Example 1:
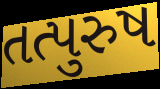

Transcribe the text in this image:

તત્પુરુષ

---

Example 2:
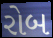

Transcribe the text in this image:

રોબ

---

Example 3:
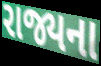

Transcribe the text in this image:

રાજ્યના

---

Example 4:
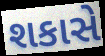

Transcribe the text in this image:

શકાસે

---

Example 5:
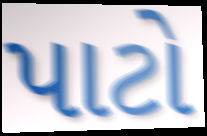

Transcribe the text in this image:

પાટો